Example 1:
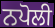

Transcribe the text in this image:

ਨਪੋਲੀ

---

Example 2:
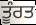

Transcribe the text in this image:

ਤੂੰਰਤ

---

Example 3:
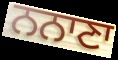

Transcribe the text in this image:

ਨਨਾਣਾ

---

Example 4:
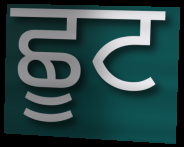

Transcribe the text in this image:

ਛੂਟ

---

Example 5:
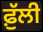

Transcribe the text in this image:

ਫ਼ੁੱਲੀ